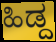
ಹಿಡ್ದ